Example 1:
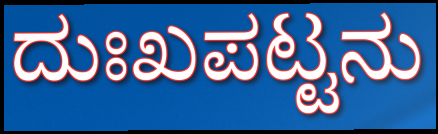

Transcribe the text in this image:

ದುಃಖಪಟ್ಟನು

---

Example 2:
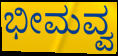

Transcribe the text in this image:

ಭೀಮವ್ವ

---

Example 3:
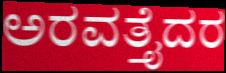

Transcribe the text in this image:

ಅರವತ್ತೈದರ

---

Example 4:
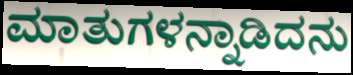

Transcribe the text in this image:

ಮಾತುಗಳನ್ನಾಡಿದನು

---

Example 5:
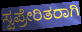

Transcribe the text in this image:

ಸ್ವಪ್ರೇರಿತರಾಗಿ